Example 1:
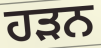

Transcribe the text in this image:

ਹੜਨ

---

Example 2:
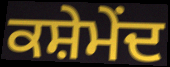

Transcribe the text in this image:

ਕਸ਼ੇਮੇਂਦ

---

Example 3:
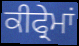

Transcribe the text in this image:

ਕੀਫ੍ਰੇਮਾਂ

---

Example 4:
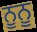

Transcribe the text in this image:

ਨੂਨੂ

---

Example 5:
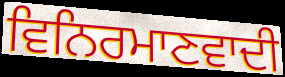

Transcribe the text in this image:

ਵਿਨਿਰਮਾਣਵਾਦੀ